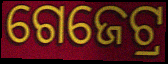
ଗେଜେଟ୍ର